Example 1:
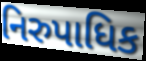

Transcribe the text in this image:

નિરુપાધિક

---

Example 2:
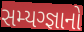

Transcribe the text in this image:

સમ્યગ્જ્ઞાનો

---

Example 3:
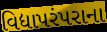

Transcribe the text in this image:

વિદ્યાપરંપરાના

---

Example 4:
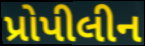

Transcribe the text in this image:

પ્રોપીલીન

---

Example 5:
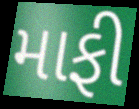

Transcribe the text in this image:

માફી